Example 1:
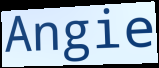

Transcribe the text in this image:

Angie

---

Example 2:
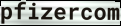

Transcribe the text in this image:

pfizercom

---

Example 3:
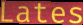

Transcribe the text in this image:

Lates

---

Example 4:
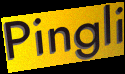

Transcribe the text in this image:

Pingli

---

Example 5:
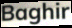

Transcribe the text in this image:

Baghir